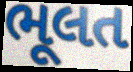
ભૂલત